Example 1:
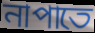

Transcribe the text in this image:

নাপাতে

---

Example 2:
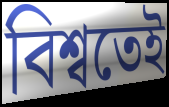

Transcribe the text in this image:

বিশ্বতেই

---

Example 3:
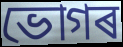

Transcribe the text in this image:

ভোগৰ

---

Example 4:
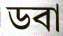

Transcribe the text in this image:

ডবা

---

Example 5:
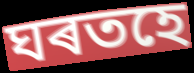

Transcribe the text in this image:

ঘৰতহে